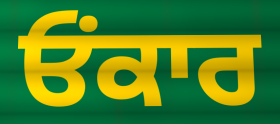
ਓਂਕਾਰ